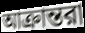
আক্রান্তরা